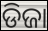
ଡିଜା